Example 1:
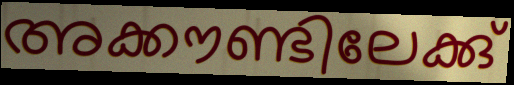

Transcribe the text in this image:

അക്കൗണ്ടിലേക്കു്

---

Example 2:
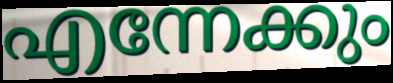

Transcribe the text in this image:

എന്നേക്കും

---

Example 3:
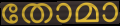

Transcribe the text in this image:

തോമാ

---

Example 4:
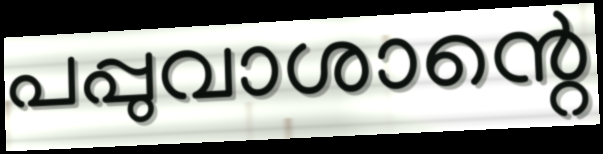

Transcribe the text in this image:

പപ്പുവാശാന്റെ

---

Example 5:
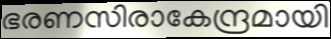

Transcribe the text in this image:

ഭരണസിരാകേന്ദ്രമായി